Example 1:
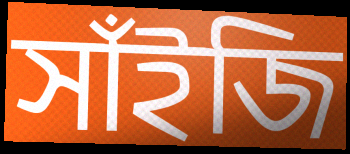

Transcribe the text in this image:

সাঁইজি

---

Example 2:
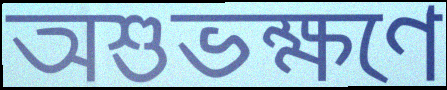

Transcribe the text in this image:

অশুভক্ষণে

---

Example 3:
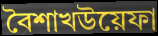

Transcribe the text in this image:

বৈশাখউয়েফা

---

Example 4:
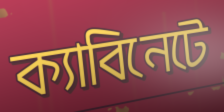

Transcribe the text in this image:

ক্যাবিনেটে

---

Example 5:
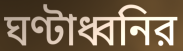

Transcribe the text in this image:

ঘণ্টাধ্বনির